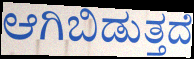
ಆಗಿಬಿಡುತ್ತದೆ